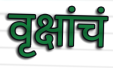
वृक्षांचं